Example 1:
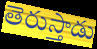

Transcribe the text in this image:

తెరుస్తాడు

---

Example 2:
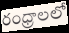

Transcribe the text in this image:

రంధ్రాలలో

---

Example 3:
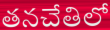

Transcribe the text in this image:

తనచేతిలో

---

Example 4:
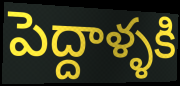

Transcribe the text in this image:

పెద్దాళ్ళకి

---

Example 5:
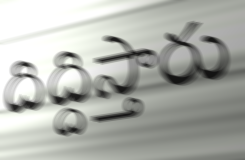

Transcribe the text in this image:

దిద్దిస్తారు